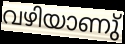
വഴിയാണു്